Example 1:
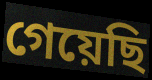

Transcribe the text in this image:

গেয়েছি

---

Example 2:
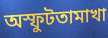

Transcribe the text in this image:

অস্ফুটতামাখা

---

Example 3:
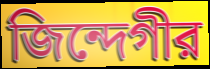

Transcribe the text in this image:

জিন্দেগীর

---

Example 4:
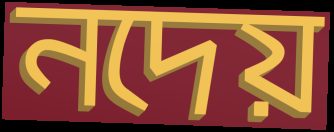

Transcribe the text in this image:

নদেয়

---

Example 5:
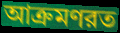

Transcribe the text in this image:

আক্রমণরত